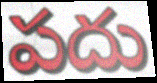
పదు